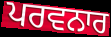
ਪਰਵਨਾਰ